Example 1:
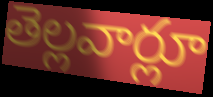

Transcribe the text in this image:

తెల్లవార్లూ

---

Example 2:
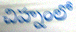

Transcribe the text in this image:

చిహ్నంలో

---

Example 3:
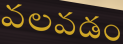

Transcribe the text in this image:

వలవడం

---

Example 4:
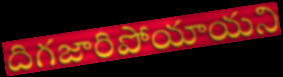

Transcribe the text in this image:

దిగజారిపోయాయని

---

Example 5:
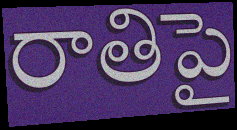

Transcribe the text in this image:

రాతిపై